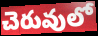
చెరువులో